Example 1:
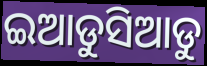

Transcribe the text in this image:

ଇଆଡୁସିଆଡୁ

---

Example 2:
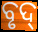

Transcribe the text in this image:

ବୃଦ୍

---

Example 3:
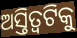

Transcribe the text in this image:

ଅସ୍ତିତ୍ୱଟିକୁ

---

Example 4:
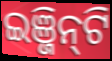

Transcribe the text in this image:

ଇଞ୍ଜିନ୍‌ଟି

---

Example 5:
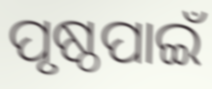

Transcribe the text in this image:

ପୃଷ୍ଠପାଇଁ